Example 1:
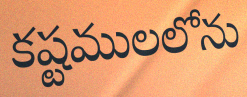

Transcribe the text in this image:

కష్టములలోను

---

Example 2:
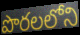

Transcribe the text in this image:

పొరలలోని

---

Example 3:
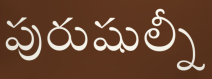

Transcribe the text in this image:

పురుషుల్నీ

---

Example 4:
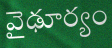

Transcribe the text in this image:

వైఢూర్యం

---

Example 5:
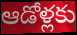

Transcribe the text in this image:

ఆడోళ్లకు